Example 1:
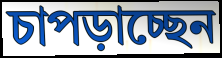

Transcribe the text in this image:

চাপড়াচ্ছেন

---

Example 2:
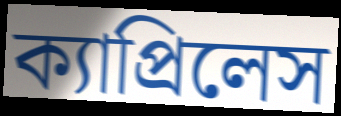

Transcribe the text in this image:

ক্যাপ্রিলেস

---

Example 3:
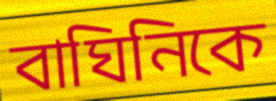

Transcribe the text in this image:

বাঘিনিকে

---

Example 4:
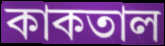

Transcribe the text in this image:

কাকতাল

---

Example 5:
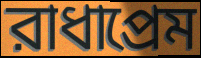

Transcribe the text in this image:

রাধাপ্রেম